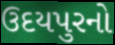
ઉદયપુરનો